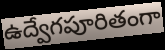
ఉద్వేగపూరితంగా